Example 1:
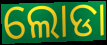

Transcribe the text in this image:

ଲୋଡା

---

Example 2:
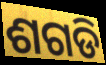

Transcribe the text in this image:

ଶଗଡି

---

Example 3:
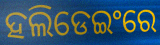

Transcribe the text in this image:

ହଲିଡେଇଂରେ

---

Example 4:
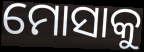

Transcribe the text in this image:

ମୋସାକୁ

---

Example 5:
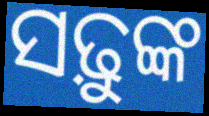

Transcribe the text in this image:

ସଢ଼ୁଙ୍କ